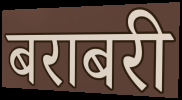
बराबरी